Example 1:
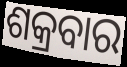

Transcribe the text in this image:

ଶକ୍ରବାର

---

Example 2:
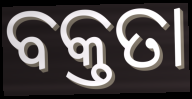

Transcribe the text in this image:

ବକ୍ତତା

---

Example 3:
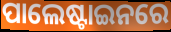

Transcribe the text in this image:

ପାଲେଷ୍ଟାଇନରେ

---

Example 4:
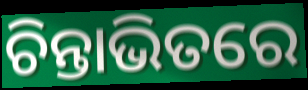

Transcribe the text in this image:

ଚିନ୍ତାଭିତରେ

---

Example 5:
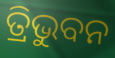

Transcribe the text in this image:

ତ୍ରିଭୁବନ